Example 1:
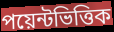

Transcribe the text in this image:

পয়েন্টভিত্তিক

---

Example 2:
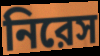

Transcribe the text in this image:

নিরেস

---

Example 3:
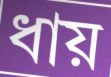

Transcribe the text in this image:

ধায়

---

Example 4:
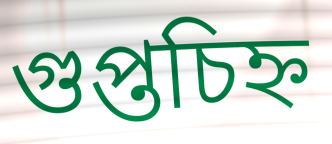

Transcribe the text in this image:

গুপ্তচিহ্ন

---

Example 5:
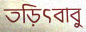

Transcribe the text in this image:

তড়িৎবাবু